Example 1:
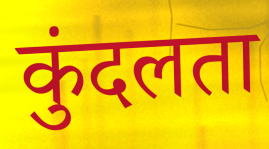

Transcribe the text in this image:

कुंदलता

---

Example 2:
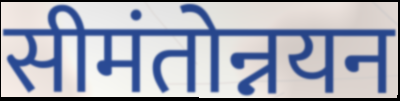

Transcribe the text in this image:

सीमंतोन्नयन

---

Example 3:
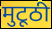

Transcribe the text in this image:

मुटूठी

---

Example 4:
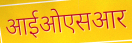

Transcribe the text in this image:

आईओएसआर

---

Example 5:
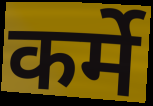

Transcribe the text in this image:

कर्मे